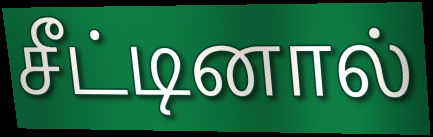
சீட்டினால்